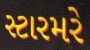
સ્ટારમરે